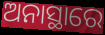
ଅନାସ୍ଥାରେ